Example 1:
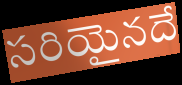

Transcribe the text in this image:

సరియైనదే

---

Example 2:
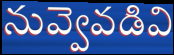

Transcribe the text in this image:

నువ్వెవడివి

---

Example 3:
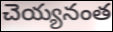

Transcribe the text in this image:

చెయ్యనంత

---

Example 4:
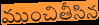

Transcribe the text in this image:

ముంచితీసిన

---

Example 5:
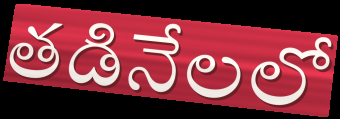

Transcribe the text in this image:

తడినేలలో